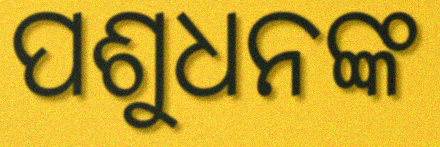
ପଶୁଧନଙ୍କ